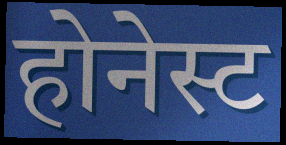
होनेस्ट